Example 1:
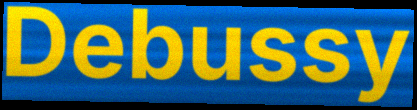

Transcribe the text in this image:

Debussy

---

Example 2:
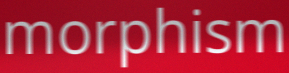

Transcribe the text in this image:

morphism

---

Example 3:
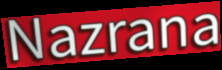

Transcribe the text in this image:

Nazrana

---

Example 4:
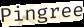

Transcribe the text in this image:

Pingree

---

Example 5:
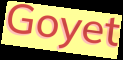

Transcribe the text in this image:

Goyet